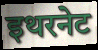
इथरनेट